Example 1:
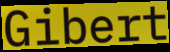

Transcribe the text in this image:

Gibert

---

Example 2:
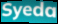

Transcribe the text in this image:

Syeda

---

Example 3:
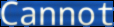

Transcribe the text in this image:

Cannot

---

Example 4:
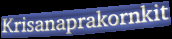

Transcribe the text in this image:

Krisanaprakornkit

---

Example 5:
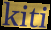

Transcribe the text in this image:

kiti